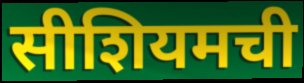
सीशियमची